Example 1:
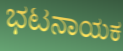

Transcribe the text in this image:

ಭಟನಾಯಕ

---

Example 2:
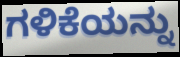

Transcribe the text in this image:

ಗಳಿಕೆಯನ್ನು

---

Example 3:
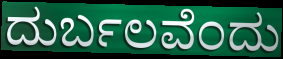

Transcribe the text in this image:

ದುರ್ಬಲವೆಂದು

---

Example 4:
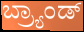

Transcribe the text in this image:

ಬ್ರ್ಯಾಂಡ್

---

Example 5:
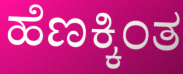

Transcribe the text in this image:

ಹೆಣಕ್ಕಿಂತ